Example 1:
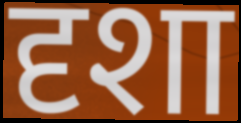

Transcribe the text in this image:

दृशा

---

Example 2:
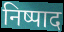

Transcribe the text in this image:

निष्पाद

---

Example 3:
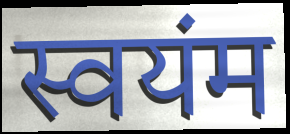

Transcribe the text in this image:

स्वयंम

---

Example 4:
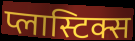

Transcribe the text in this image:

प्लास्टिक्स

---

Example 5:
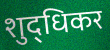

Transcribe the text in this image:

शुद्धिकर